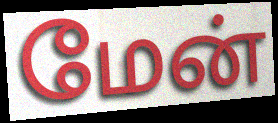
மேன்